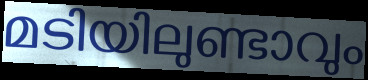
മടിയിലുണ്ടാവും